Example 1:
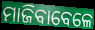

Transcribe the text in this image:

ମାଜିବାବେଳେ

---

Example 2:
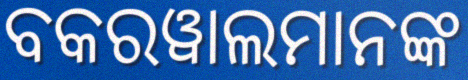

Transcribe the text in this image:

ବକରୱାଲମାନଙ୍କ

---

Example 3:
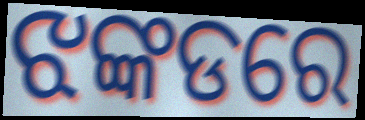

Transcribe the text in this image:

ଝଙ୍କଡରେ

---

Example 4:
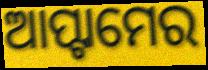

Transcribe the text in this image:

ଆପ୍ଟାମେର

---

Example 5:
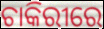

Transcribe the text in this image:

ଚାକିରୀରେ